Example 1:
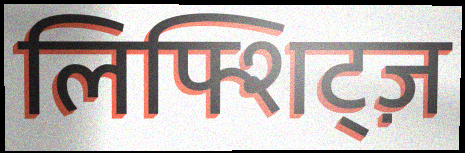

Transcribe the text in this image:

लिफ्शिट्ज़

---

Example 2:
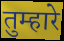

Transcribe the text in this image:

तुम्हारे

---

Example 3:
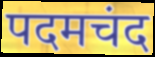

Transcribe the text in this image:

पदमचंद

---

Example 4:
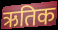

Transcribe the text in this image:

ऋतिक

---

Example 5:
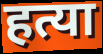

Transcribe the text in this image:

हत्या